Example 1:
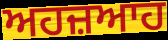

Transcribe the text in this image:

ਅਹਜ਼ਆਹ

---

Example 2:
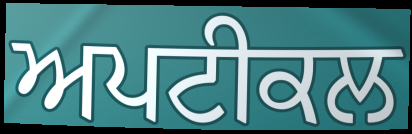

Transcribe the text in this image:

ਅਪਟੀਕਲ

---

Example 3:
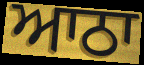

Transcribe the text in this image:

ਆਠਾ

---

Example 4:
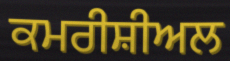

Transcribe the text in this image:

ਕਮਰੀਸ਼ੀਅਲ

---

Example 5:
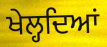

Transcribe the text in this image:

ਖੇਲ੍ਹਦਿਆਂ